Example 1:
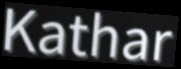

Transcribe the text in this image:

Kathar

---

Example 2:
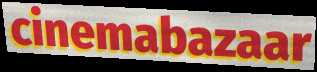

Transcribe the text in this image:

cinemabazaar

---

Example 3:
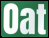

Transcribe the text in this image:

Oat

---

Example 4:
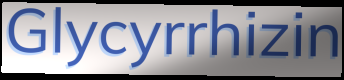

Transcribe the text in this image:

Glycyrrhizin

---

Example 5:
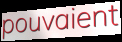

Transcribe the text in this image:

pouvaient